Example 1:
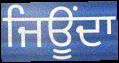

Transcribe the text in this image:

ਜਿਊਂਦਾ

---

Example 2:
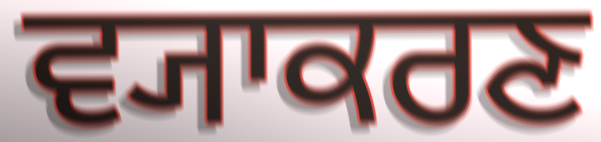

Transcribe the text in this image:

ਵ੍ਯਾਕਰਣ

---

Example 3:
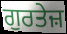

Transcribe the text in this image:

ਗੁਰਤੇਜ਼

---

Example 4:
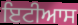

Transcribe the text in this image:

ਇਟੀਆਸ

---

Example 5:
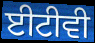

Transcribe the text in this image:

ਈਟੀਵੀ